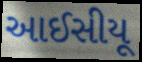
આઈસીયૂ